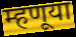
म्हणूया